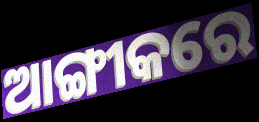
ଆଙ୍ଗୀକରେ